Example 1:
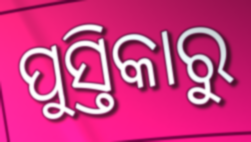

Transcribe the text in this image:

ପୁସ୍ତିକାରୁ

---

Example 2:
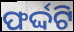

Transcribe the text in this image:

ଫର୍ଦ୍ଦଟି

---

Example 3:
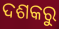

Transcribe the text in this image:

ଦଶକରୁ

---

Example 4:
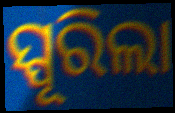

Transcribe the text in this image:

ସ୍ପୂରିଲା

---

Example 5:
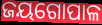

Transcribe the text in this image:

ଜୟଗୋପାଳ